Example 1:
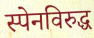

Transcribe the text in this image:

स्पेनविरुद्ध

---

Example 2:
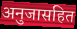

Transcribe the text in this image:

अनुजासहित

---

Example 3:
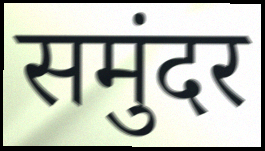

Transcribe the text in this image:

समुंदर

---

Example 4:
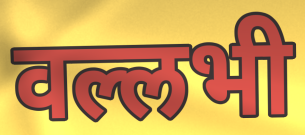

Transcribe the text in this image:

वल्लभी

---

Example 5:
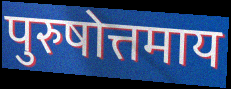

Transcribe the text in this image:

पुरुषोत्तमाय